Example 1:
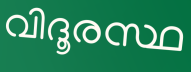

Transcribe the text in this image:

വിദൂരസ്ഥ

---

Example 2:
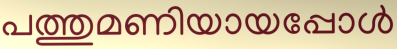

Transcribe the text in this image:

പത്തുമണിയായപ്പോൾ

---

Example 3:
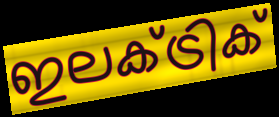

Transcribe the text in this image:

ഇലക്ട്രിക്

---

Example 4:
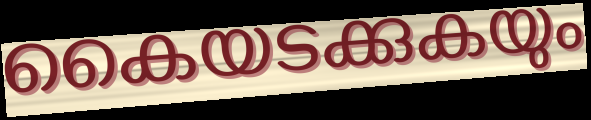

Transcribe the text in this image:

കൈയടക്കുകയും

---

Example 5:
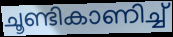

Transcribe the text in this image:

ചൂണ്ടികാണിച്ച്